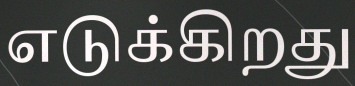
எடுக்கிறது